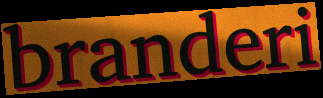
branderi